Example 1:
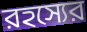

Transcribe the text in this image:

রহস্যের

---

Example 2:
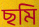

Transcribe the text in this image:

ছমি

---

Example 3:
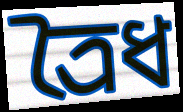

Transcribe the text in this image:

ত্রৈধ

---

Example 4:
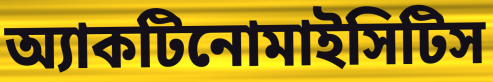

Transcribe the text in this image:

অ্যাকটিনোমাইসিটিস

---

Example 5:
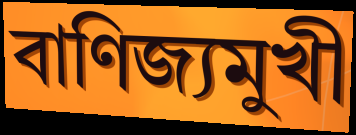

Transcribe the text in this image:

বাণিজ্যমুখী